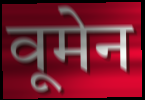
वूमेन